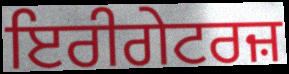
ਇਰੀਗੇਟਰਜ਼